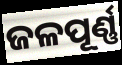
ଜଳପୂର୍ଣ୍ଣ